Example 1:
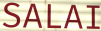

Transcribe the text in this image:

SALAI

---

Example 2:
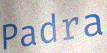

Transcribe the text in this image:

Padra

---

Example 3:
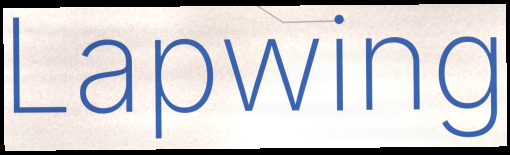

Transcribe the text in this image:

Lapwing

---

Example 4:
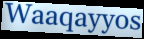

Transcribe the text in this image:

Waaqayyos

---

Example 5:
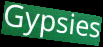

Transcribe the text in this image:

Gypsies